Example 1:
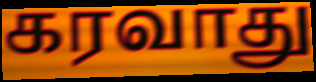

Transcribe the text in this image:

கரவாது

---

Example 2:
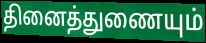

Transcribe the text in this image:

தினைத்துணையும்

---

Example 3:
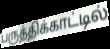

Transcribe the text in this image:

பருத்திக்காட்டில்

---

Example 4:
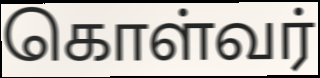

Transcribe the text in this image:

கொள்வர்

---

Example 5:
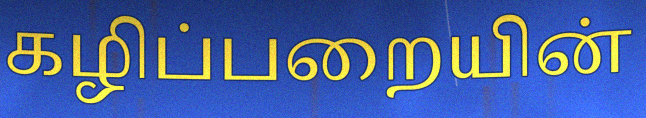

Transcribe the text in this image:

கழிப்பறையின்